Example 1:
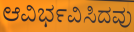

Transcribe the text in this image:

ಆವಿರ್ಭವಿಸಿದವು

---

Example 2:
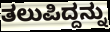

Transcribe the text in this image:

ತಲುಪಿದ್ದನ್ನು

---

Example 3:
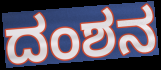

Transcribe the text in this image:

ದಂಶನ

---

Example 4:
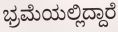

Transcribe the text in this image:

ಭ್ರಮೆಯಲ್ಲಿದ್ದಾರೆ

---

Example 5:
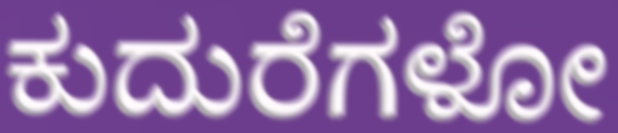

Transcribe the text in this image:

ಕುದುರೆಗಳೋ